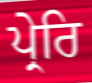
ਪ੍ਰੇਰਿ